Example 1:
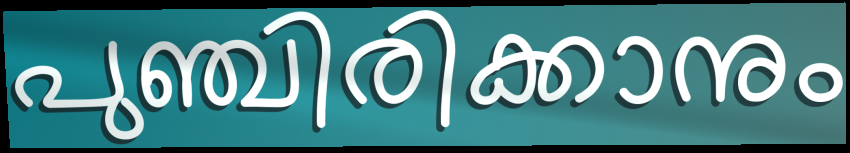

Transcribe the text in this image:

പുഞ്ചിരിക്കാനും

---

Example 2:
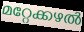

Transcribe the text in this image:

മറ്റേക്കഴൽ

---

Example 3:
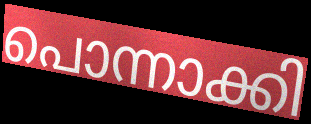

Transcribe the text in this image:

പൊന്നാക്കി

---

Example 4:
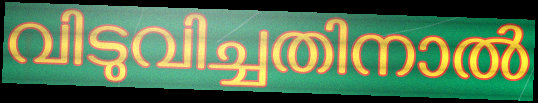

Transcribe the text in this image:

വിടുവിച്ചതിനാൽ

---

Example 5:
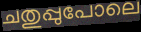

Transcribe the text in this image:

ചതുപ്പുപോലെ